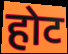
होट